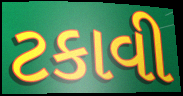
ટકાવી